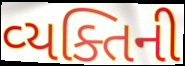
વ્‍યક્તિની